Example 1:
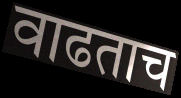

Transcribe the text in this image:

वाढताच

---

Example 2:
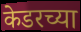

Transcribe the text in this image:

केडरच्या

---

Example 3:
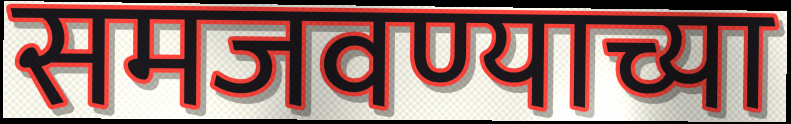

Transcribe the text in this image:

समजवण्याच्या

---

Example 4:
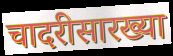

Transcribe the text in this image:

चादरीसारख्या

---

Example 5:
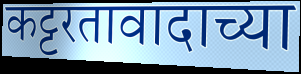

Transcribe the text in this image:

कट्टरतावादाच्या